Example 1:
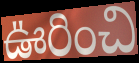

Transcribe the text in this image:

ఊరించి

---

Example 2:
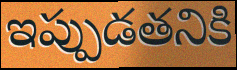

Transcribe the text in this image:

ఇప్పుడతనికి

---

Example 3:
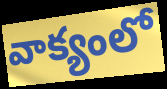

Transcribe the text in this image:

వాక్యంలో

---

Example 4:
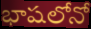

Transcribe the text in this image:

భాషలోనో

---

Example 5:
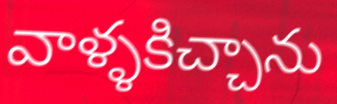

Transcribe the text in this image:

వాళ్ళకిచ్చాను